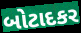
બોટાદકર